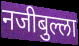
नजीबुल्ला